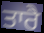
ਤਾਰੈ